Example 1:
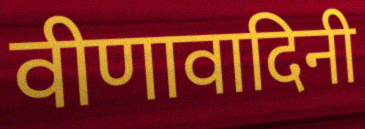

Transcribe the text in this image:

वीणावादिनी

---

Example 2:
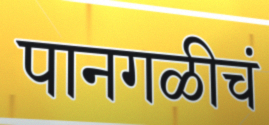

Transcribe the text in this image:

पानगळीचं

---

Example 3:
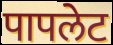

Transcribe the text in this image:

पापलेट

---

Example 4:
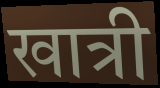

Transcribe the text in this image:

खात्री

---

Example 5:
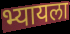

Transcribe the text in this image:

भ्यायला